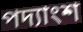
পদ্যাংশ